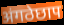
अंगठेछाप